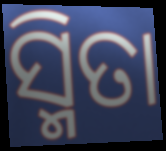
ସ୍ମିତା